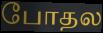
போதல